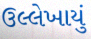
ઉલ્લેખાયું